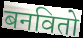
बनवितो